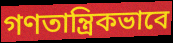
গণতান্ত্রিকভাবে